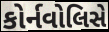
કોર્નવોલિસે